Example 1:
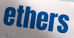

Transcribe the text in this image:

ethers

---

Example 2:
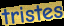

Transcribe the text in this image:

tristes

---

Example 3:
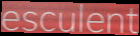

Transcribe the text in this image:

esculent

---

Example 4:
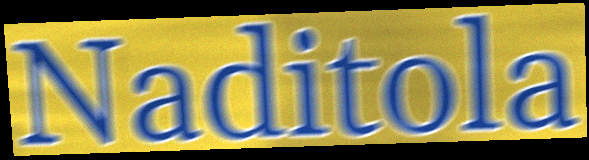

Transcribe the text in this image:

Naditola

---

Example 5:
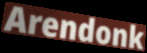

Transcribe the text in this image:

Arendonk